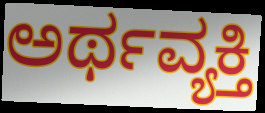
ಅರ್ಥವ್ಯಕ್ತಿ